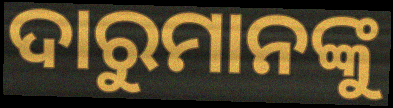
ଦାରୁମାନଙ୍କୁ